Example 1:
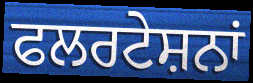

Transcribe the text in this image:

ਫਲਰਟੇਸ਼ਨਾਂ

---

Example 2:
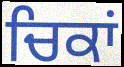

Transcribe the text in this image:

ਚਿਕਾਂ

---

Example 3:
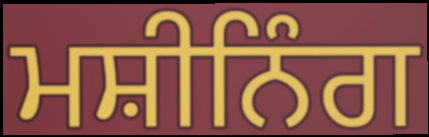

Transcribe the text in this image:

ਮਸ਼ੀਨਿੰਗ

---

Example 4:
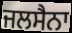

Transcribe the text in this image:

ਜਲਸੈਨਾ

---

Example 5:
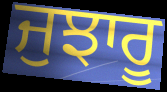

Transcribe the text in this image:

ਜੁਝਾਰੂ